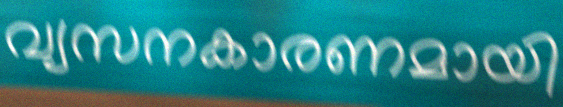
വ്യസനകാരണമായി